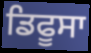
ਡਿਫੂਸਾ